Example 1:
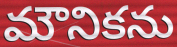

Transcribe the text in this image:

మౌనికను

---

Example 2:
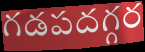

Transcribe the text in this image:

గడపదగ్గర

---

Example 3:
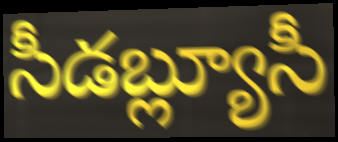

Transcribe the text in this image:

సీడబ్ల్యూసీ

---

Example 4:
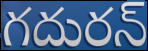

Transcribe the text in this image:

గదురన్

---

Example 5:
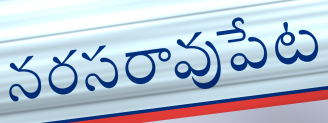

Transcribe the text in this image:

నరసరావుపేట